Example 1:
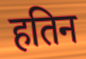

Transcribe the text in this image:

हतिन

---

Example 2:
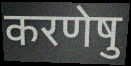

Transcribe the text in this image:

करणेषु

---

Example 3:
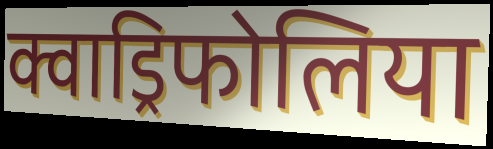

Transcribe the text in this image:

क्वाड्रिफोलिया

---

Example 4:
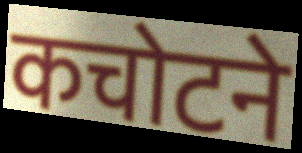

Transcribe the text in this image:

कचोटने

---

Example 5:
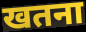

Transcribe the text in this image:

खतना